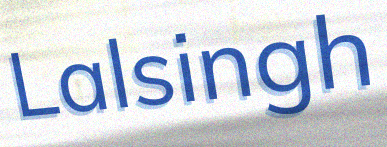
Lalsingh